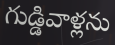
గుడ్డివాళ్లను